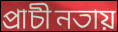
প্রাচীনতায়